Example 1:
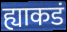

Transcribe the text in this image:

ह्याकडं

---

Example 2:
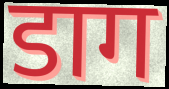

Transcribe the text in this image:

डाग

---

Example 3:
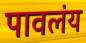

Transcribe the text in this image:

पावलंय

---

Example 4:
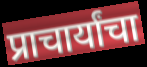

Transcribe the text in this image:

प्राचार्यांचा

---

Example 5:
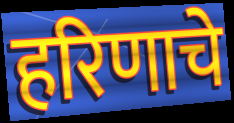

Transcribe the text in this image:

हरिणाचे